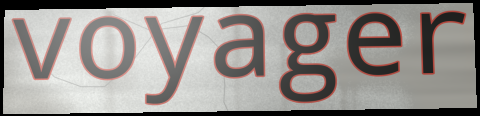
voyager